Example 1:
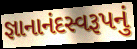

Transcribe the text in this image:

જ્ઞાનાનંદસ્વરૂપનું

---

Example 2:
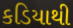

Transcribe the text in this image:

કડિયાથી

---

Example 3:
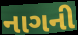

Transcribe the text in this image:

નાગની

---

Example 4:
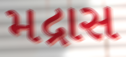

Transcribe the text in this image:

મદ્રાસ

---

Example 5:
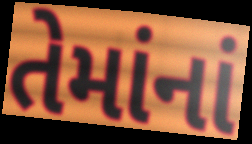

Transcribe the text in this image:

તેમાંનાં